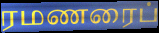
ரமணரைப்